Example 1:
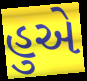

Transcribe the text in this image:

હુએ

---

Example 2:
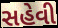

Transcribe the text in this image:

સહેવી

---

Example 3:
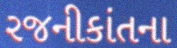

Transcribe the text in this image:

રજનીકાંતના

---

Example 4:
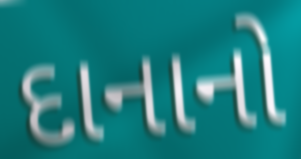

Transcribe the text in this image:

દાનાનો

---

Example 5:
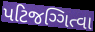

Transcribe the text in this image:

પટિજગ્ગિત્વા